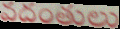
వదంతులు